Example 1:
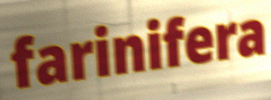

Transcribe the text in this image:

farinifera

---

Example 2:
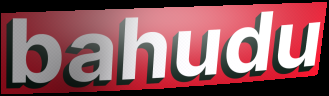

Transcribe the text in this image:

bahudu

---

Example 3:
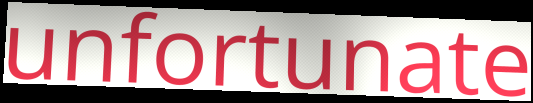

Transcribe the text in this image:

unfortunate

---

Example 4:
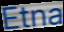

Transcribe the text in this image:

Etna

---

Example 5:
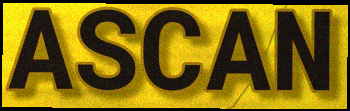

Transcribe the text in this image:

ASCAN